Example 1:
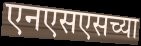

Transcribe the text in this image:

एनएसएसच्या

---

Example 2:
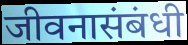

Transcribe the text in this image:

जीवनासंबंधी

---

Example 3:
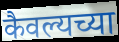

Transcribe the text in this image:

कैवल्यच्या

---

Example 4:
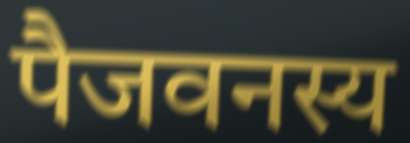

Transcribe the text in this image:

पैजवनस्य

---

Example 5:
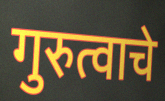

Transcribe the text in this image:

गुरुत्वाचे